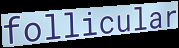
follicular